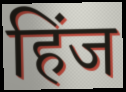
हिंज